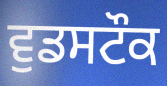
ਵੁਡਸਟੌਕ